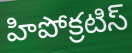
హిపోక్రటిస్